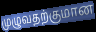
முழுவதற்குமான